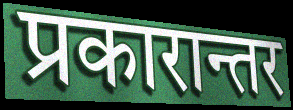
प्रकारान्तर